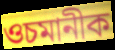
ওচমানীক